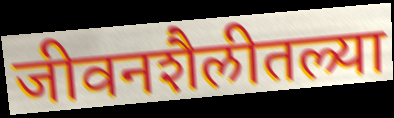
जीवनशैलीतल्या